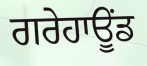
ਗਰੇਹਾਊਂਡ